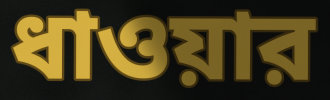
ধাওয়ার